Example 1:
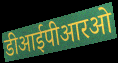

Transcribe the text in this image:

डीआईपीआरओ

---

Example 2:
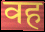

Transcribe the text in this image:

वह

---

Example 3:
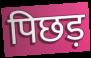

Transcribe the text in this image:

पिछड़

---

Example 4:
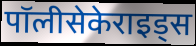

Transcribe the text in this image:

पॉलीसेकेराइड्स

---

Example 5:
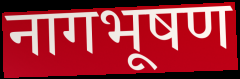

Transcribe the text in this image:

नागभूषण